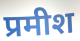
प्रमीश